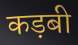
कड़बी